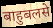
बाहुबलसे